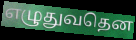
எழுதுவதென